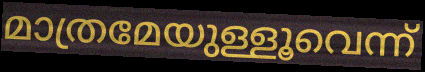
മാത്രമേയുള്ളൂവെന്ന്